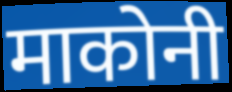
माकोनी